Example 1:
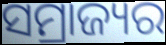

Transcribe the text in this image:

ସମ୍ରାଜ୍ୟର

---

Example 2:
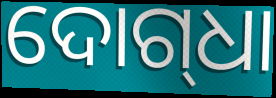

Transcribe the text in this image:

ଦୋଗ୍‌ଧା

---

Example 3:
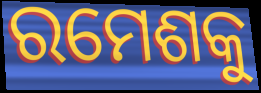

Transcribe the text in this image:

ରମେଶକୁ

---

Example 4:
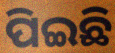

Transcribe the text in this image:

ପିଇଛି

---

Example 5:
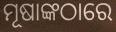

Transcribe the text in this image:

ମୂଷାଙ୍କଠାରେ